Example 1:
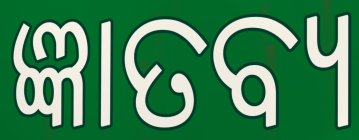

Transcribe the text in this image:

ଜ୍ଞାତବ୍ୟ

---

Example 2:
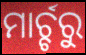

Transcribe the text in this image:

ମାର୍ଚ୍ଚରୁ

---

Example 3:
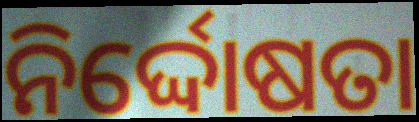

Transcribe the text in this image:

ନିର୍ଦ୍ଦୋଷତା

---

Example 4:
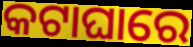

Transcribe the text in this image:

କଟାଘାରେ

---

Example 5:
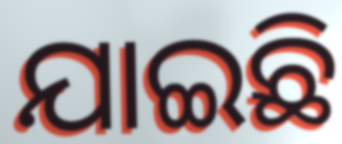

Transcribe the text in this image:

ଯାଇଛି